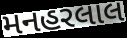
મનહરલાલ